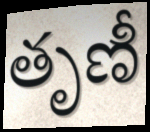
తృణీ